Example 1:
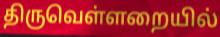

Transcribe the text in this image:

திருவெள்ளறையில்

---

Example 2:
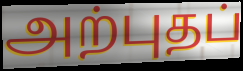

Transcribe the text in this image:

அற்புதப்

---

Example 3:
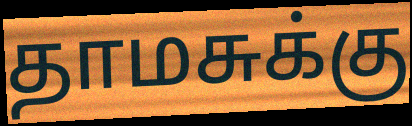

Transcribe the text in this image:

தாமசுக்கு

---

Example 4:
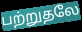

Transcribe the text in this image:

பற்றுதலே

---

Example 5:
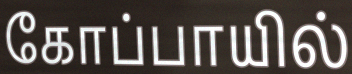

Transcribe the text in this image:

கோப்பாயில்